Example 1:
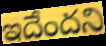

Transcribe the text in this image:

ఇదేందని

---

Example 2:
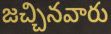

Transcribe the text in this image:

జచ్చినవారు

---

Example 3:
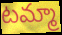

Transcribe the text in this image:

టమ్మా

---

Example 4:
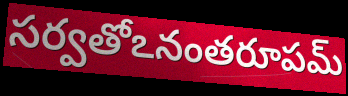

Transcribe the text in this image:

సర్వతోఽనంతరూపమ్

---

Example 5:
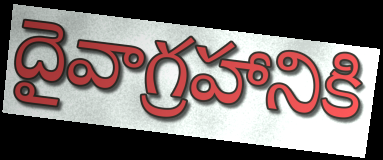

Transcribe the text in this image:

దైవాగ్రహానికి